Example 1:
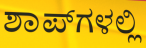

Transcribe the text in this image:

ಶಾಪ್‌ಗಳಲ್ಲಿ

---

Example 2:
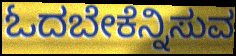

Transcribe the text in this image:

ಓದಬೇಕೆನ್ನಿಸುವ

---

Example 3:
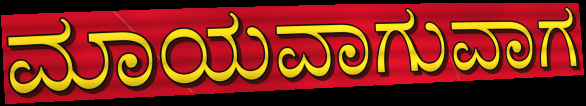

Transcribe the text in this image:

ಮಾಯವಾಗುವಾಗ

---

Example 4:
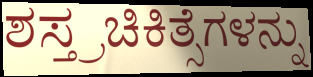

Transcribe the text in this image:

ಶಸ್ತ್ರಚಿಕಿತ್ಸೆಗಳನ್ನು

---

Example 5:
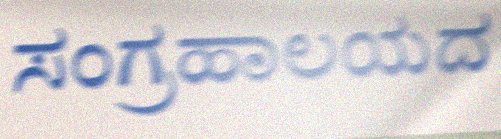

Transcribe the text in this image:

ಸಂಗ್ರಹಾಲಯದ